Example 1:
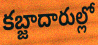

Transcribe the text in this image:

కబ్జాదారుల్లో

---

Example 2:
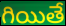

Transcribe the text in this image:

గియితే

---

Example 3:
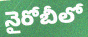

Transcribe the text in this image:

నైరోబీలో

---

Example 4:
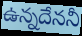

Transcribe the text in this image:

ఉన్నదేననీ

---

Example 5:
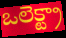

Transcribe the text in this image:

ఒలెక్ట్రా